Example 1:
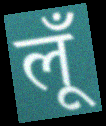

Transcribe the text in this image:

लूँ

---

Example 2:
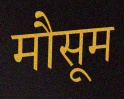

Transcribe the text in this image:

मौसूम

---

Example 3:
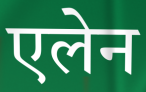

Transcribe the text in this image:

एलेन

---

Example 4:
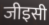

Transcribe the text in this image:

जीइसी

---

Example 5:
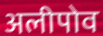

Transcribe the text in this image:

अलीपोव